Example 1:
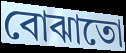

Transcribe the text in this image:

বোঝাতো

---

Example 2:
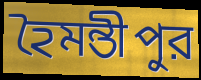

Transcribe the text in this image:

হৈমন্তীপুর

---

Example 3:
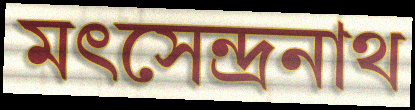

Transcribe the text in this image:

মৎসেন্দ্রনাথ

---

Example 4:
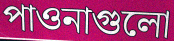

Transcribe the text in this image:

পাওনাগুলো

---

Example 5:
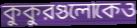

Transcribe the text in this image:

কুকুরগুলোকেও